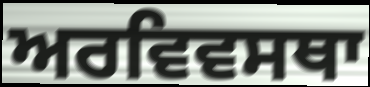
ਅਰਵਿਵਸਥਾ